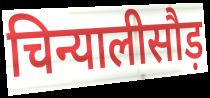
चिन्यालीसौड़